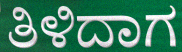
ತಿಳಿದಾಗ